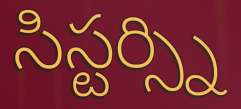
సిస్టర్స్ని